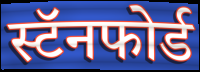
स्टॅनफोर्ड